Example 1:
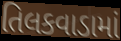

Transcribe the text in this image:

તિલકવાડામાં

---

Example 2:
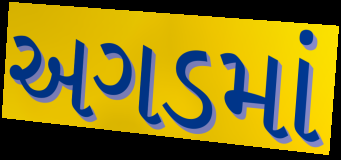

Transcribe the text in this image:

અગડમાં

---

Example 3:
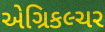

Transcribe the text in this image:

એગ્રિકલ્ચર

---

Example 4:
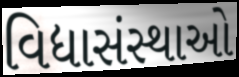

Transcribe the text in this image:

વિદ્યાસંસ્થાઓ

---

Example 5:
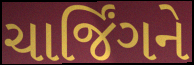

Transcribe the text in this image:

ચાર્જિંગને